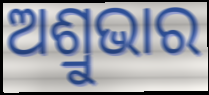
ଅଶ୍ରୁଭାର